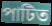
পাটিত